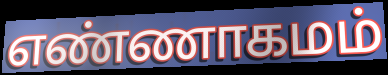
எண்ணாகமம்